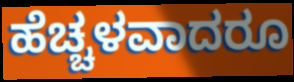
ಹೆಚ್ಚಳವಾದರೂ